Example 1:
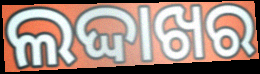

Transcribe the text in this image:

ଲଦ୍ଦାଖର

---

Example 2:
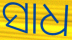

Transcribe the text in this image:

ସାଧ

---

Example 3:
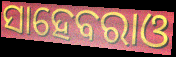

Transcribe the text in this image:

ସାହେବରାଓ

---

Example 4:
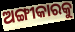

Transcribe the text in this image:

ଅଙ୍ଗୀକାରକୁ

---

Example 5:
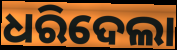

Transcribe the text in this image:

ଧରିଦେଲା